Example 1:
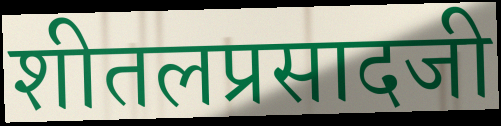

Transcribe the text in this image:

शीतलप्रसादजी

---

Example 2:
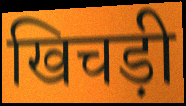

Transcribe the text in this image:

खिचड़ी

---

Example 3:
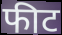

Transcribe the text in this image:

फीट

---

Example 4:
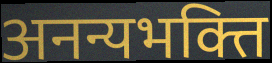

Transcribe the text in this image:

अनन्यभक्ति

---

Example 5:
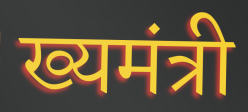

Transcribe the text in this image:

ख्यमंत्री